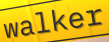
walker